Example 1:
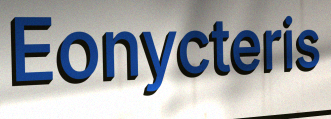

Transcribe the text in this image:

Eonycteris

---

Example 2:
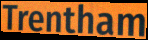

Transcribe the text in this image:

Trentham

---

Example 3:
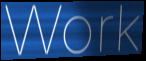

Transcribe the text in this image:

Work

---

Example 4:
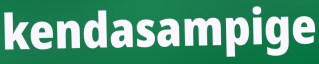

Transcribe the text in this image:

kendasampige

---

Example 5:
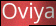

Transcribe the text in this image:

Oviya